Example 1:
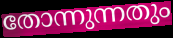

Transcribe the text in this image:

തോന്നുന്നതും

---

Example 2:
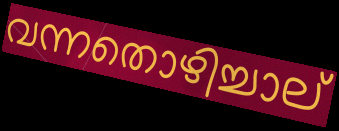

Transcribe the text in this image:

വന്നതൊഴിച്ചാല്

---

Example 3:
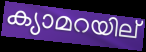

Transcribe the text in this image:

ക്യാമറയില്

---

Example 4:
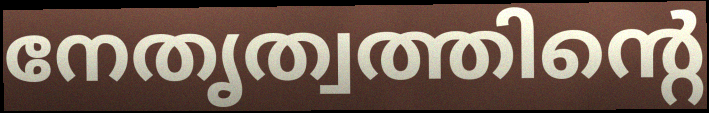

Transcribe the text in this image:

നേതൃത്വത്തിന്റെ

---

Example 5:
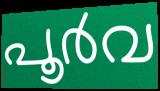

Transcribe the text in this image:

പൂർവ